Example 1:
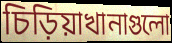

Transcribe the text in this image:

চিড়িয়াখানাগুলো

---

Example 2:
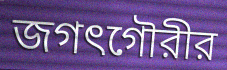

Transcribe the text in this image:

জগৎগৌরীর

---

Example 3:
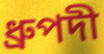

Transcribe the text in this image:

ধ্রুপদী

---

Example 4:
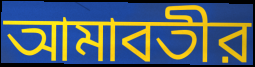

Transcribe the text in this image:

আমাবতীর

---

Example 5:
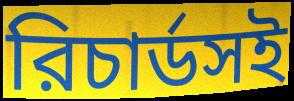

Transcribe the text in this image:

রিচার্ডসই